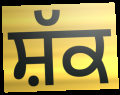
ਸ਼ੱਕ